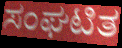
ಸಂಘಟಿತ